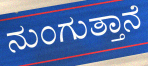
ನುಂಗುತ್ತಾನೆ